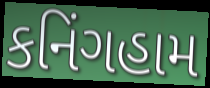
કનિંગહામ